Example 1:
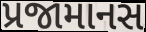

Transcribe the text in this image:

પ્રજામાનસ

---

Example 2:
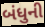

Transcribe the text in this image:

બંધુની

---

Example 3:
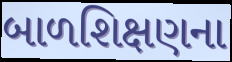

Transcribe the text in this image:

બાળશિક્ષણના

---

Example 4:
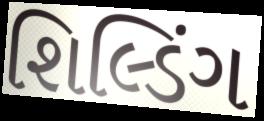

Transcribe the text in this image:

શિલ્ડિંગ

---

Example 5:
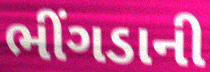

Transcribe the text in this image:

ભીંગડાની